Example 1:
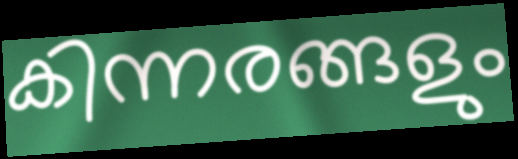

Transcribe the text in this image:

കിന്നരങ്ങളും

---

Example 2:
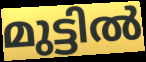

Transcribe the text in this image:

മുട്ടിൽ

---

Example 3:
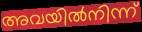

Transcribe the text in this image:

അവയിൽനിന്ന്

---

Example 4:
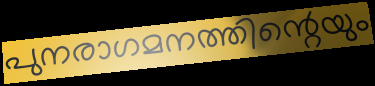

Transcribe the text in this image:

പുനരാഗമനത്തിന്റെയും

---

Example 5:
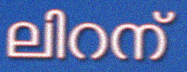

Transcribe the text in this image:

ലിറന്